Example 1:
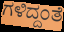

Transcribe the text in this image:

ಗಳಿದ್ದಂತೆ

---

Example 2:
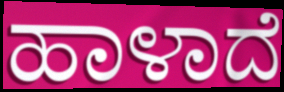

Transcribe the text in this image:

ಹಾಳಾದೆ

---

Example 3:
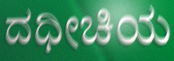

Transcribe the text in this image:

ದಧೀಚಿಯ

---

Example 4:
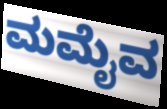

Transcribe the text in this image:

ಮಮೈವ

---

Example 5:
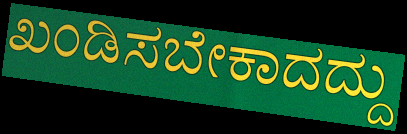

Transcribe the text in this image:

ಖಂಡಿಸಬೇಕಾದದ್ದು